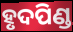
ହୃଦପିଣ୍ଡ